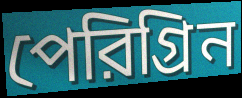
পেরিগ্রিন